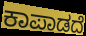
ಕಾಪಾಡದೆ